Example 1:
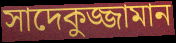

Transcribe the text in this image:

সাদেকুজ্জামান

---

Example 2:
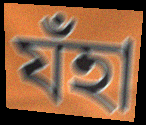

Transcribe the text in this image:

যঁহা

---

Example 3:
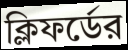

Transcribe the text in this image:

ক্লিফর্ডের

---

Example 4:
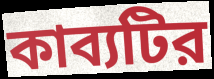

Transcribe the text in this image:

কাব্যটির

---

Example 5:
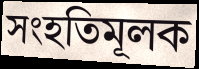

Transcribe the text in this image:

সংহতিমূলক